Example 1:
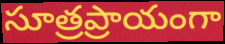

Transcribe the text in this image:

సూత్రప్రాయంగా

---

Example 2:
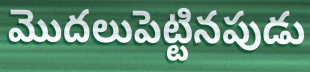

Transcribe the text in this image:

మొదలుపెట్టినపుడు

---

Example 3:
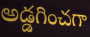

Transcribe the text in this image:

అడ్డగించగా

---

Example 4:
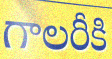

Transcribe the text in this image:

గాలరీకి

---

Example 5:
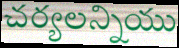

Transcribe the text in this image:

చర్యలన్నియు